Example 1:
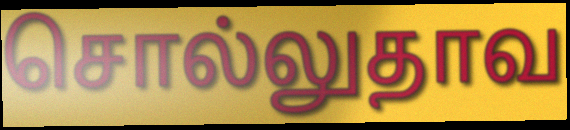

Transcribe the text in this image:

சொல்லுதாவ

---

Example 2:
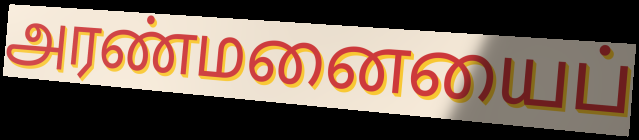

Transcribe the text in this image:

அரண்மனையைப்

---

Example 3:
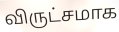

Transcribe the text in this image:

விருட்சமாக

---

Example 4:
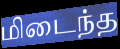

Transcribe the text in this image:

மிடைந்த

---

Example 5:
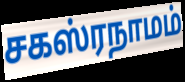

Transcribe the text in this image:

சகஸ்ரநாமம்